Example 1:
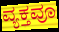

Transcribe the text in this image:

ವ್ಯಕ್ತವೂ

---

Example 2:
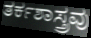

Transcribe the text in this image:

ತರ್ಕಶಾಸ್ತ್ರವು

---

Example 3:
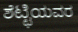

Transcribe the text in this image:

ಶೆಟ್ಟಿಯವರ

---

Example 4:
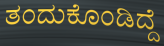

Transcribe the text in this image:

ತಂದುಕೊಂಡಿದ್ದೆ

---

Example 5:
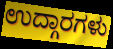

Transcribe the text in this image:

ಉದ್ಗಾರಗಳು